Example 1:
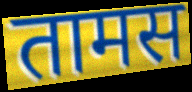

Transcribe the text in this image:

तामस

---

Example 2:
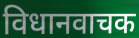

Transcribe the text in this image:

विधानवाचक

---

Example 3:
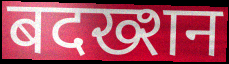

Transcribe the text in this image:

बदख्शन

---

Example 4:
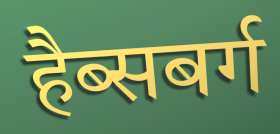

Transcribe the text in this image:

हैब्सबर्ग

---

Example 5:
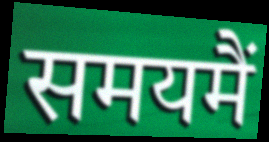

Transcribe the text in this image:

समयमैं